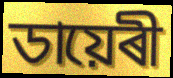
ডায়েৰী